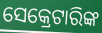
ସେକ୍ରେଟାରିଙ୍କ